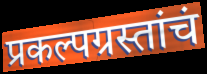
प्रकल्पग्रस्तांचं